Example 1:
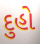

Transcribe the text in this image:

દુહો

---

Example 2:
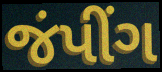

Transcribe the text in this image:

જંપીંગ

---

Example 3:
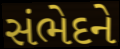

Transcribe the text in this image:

સંભેદને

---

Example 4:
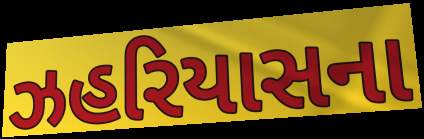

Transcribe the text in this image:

ઝહરિયાસના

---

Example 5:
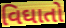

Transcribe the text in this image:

વિઘાતો